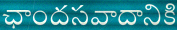
ఛాందసవాదానికి